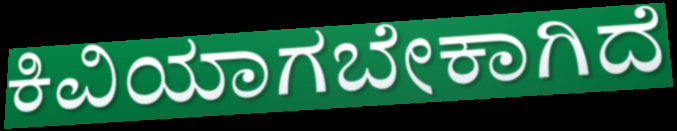
ಕಿವಿಯಾಗಬೇಕಾಗಿದೆ